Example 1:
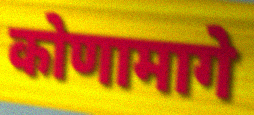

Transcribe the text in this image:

कोणामागे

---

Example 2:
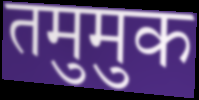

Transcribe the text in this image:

तमुमुक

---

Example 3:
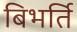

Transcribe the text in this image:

बिभर्ति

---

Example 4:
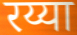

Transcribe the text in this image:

रय्या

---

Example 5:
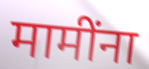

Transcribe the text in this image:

मामींना